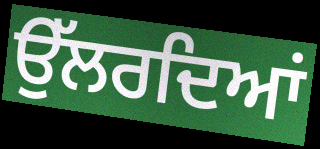
ਉੱਲਰਦਿਆਂ